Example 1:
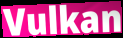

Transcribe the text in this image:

Vulkan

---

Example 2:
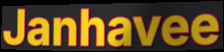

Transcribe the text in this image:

Janhavee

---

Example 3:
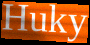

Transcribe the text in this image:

Huky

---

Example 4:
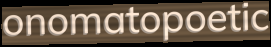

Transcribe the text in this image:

onomatopoetic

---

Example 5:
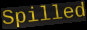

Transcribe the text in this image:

Spilled